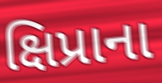
ક્ષિપ્રાના